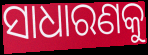
ସାଧାରଣକୁ